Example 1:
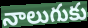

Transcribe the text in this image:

నాలుగుకు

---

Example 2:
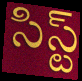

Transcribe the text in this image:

సిస్ట్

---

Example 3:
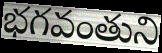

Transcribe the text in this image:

భగవంతుని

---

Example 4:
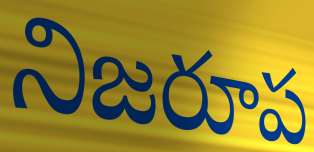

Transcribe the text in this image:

నిజరూప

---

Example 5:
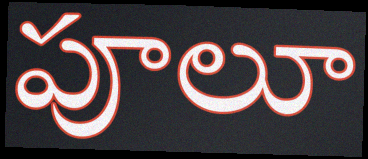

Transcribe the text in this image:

పూలూ